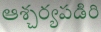
ఆశ్చర్యపడిరి